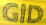
GID